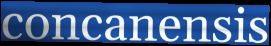
concanensis